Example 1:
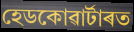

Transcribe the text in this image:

হেডকোৱাৰ্টাৰত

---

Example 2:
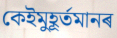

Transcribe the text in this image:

কেইমুহূৰ্তমানৰ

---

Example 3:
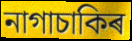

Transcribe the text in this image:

নাগাচাকিৰ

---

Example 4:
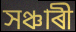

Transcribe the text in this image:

সঞ্চাৰী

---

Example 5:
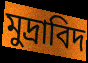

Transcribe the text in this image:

মুদ্ৰাবিদ